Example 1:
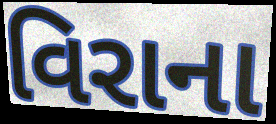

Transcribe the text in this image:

વિરાના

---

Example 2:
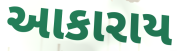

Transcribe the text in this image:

આકારાય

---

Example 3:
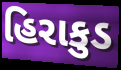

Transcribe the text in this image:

હિરાકુડ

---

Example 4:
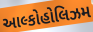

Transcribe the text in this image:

આલ્કોહોલિઝમ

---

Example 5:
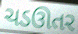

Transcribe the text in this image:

ચડઊતર